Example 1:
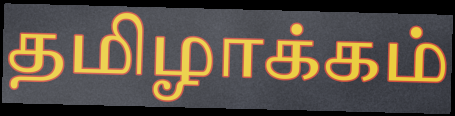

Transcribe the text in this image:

தமிழாக்கம்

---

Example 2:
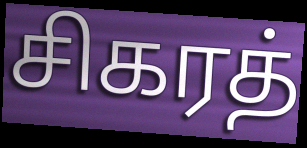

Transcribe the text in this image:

சிகரத்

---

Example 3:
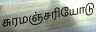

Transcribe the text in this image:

சுரமஞ்சரியோடு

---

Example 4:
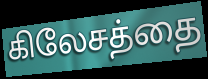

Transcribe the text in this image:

கிலேசத்தை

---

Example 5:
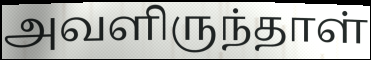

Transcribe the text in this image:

அவளிருந்தாள்